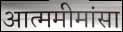
आत्ममीमांसा